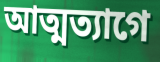
আত্মত্যাগে